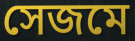
সেজমে